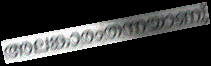
അലങ്കാരംതന്നയാണു്